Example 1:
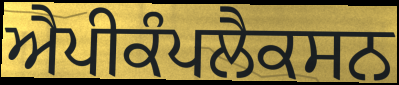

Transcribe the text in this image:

ਐਪੀਕੰਪਲੈਕਸਨ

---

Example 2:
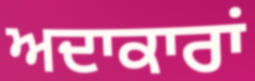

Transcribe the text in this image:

ਅਦਾਕਾਰਾਂ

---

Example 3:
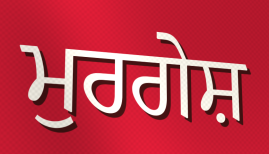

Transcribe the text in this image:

ਮੁਰਗੇਸ਼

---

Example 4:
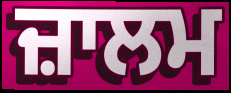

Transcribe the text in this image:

ਜ਼ਾਲਮ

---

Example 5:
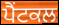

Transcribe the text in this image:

ਪੈਂਟਕਲ